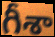
గీశా